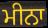
ਮੀਨਾ